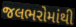
જલભરોમાંથી